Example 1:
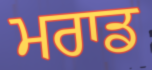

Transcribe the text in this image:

ਮਰਾਡ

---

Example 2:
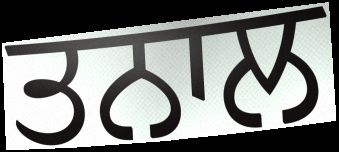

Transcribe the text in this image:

ਤਨਾਲ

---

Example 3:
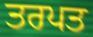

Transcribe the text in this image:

ਤਰਪਤ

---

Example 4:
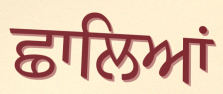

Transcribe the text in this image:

ਛਾਲਿਆਂ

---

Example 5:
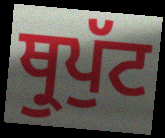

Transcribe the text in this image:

ਥ੍ਰੁਪੁੱਟ